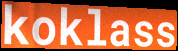
koklass